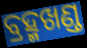
ବ୍ରହ୍ମଖଣ୍ଡ